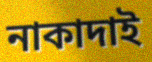
নাকাদাই